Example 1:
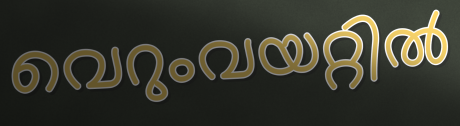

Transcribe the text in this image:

വെറുംവയറ്റിൽ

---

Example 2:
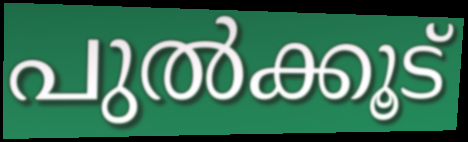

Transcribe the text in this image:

പുൽക്കൂട്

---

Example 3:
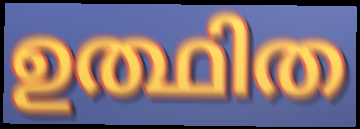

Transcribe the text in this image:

ഉത്ഥിത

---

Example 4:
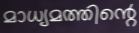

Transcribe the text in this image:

മാധ്യമത്തിന്റെ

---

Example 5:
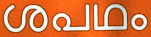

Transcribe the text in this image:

ശപഥം